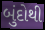
બુંદોથી